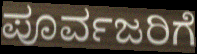
ಪೂರ್ವಜರಿಗೆ